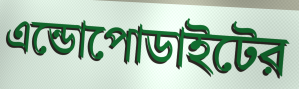
এন্ডোপোডাইটের